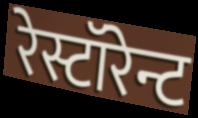
रेस्टॉरेन्ट